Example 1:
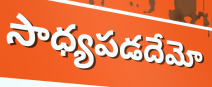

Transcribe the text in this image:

సాధ్యపడదేమో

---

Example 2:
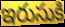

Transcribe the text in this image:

ఇరుసుకి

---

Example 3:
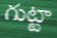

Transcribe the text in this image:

గుట్టా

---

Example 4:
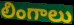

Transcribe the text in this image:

లింగాలు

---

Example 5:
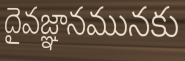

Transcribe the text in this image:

దైవజ్ఞానమునకు